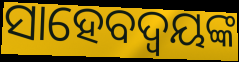
ସାହେବଦ୍ୱୟଙ୍କ